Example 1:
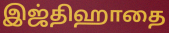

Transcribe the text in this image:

இஜ்திஹாதை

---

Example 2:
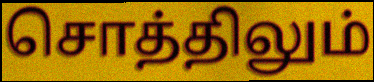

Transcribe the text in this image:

சொத்திலும்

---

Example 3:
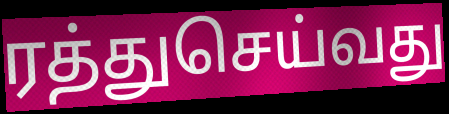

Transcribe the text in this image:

ரத்துசெய்வது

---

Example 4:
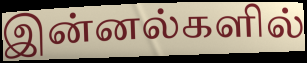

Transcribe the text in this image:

இன்னல்களில்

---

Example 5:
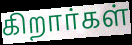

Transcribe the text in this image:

கிறார்கள்